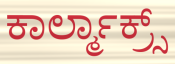
ಕಾರ್ಲ್ಮಾಕ್ರ್ಸ್